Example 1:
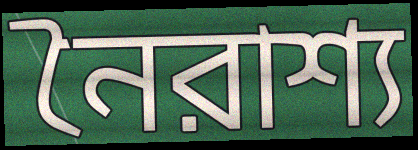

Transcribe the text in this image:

নৈরাশ্য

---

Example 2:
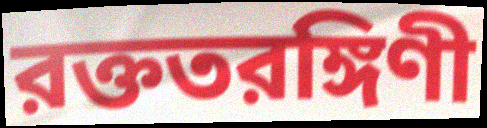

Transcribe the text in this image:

রক্ততরঙ্গিণী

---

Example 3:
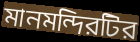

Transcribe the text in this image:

মানমন্দিরটির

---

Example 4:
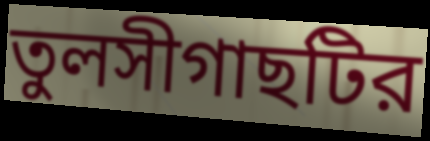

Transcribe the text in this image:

তুলসীগাছটির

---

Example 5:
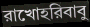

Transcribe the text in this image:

রাখোহরিবাবু